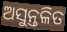
ଅସୁନ୍ତଳିତ